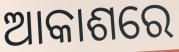
ଆକାଶରେ